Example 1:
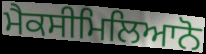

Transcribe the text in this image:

ਮੈਕਸੀਮਿਲਿਆਨੋ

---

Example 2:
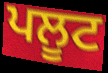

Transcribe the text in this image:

ਪਲੂਟ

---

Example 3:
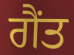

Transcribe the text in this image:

ਗੈਂਤ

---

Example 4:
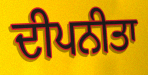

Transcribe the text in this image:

ਦੀਪਨੀਤਾ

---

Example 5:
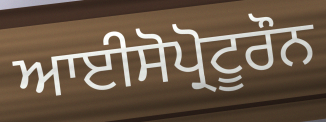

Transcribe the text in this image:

ਆਈਸੋਪ੍ਰੋਟੂਰੌਨ